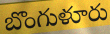
బొంగుళూరు